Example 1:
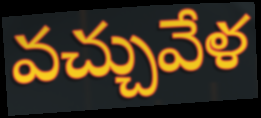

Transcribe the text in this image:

వచ్చువేళ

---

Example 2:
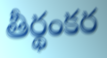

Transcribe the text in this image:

తీర్థంకర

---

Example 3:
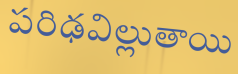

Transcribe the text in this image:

పరిఢవిల్లుతాయి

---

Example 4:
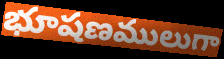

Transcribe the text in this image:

భూషణములుగా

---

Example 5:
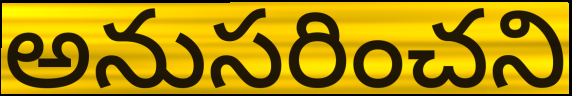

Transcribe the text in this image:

అనుసరించని